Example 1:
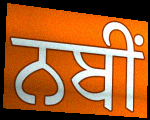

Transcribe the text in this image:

ਨਬੀਂ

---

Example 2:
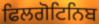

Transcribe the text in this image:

ਫਿਲਗੋਟਿਨਿਬ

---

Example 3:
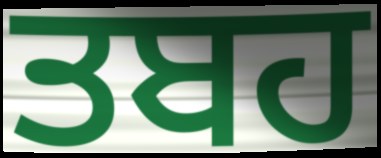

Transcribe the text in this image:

ਤਬਹ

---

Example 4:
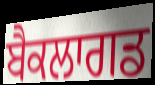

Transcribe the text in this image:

ਬੈਕਲਾਗਡ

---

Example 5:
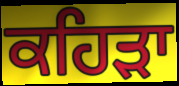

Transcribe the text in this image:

ਕਹਿੜਾ